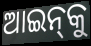
ଆଇନ୍‍କୁ